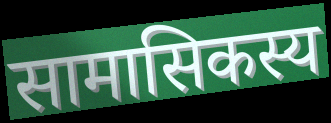
सामासिकस्य